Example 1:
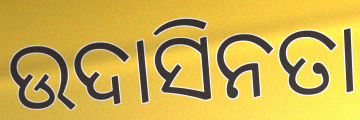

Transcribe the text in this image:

ଉଦାସିନତା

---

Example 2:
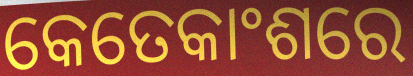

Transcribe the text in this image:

କେତେକାଂଶରେ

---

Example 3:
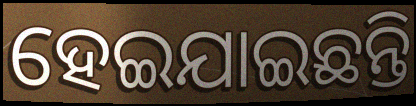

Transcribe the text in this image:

ହେଇଯାଇଛନ୍ତି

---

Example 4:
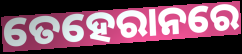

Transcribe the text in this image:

ତେହେରାନରେ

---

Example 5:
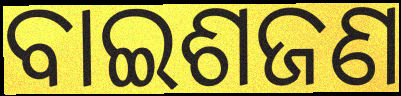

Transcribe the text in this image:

ବାଇଶଜଣ